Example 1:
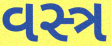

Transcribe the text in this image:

વસ્ત્ર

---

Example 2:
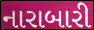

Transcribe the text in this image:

નારાબારી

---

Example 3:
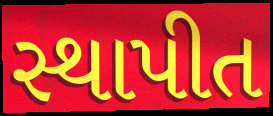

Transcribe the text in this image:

સ્થાપીત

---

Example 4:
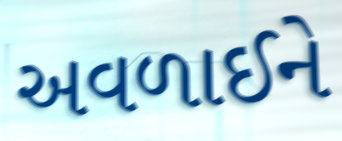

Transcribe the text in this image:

અવળાઈને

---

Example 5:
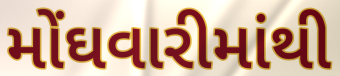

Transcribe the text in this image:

મોંઘવારીમાંથી